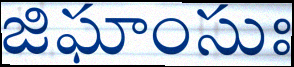
జిఘాంసుః